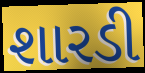
શારડી